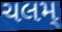
ચલમ્